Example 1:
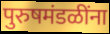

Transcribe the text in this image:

पुरुषमंडळींना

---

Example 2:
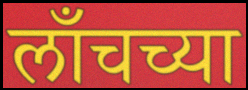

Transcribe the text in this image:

लाँचच्या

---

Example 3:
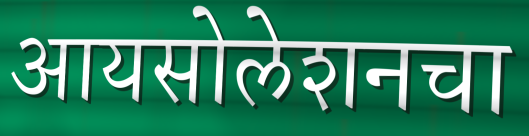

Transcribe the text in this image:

आयसोलेशनचा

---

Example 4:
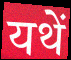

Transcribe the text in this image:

यथें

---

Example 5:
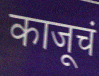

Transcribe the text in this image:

काजूचं